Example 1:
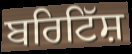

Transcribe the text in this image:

ਬਰਿਟਿੱਸ਼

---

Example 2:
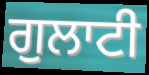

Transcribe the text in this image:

ਗੁਲਾਟੀ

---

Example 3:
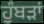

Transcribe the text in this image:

ਹੁੰਬੜਾਂ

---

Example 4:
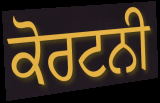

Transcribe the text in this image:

ਕੋਰਟਨੀ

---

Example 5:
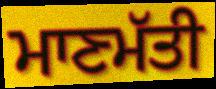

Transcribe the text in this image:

ਮਾਣਮੱਤੀ